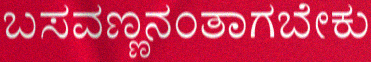
ಬಸವಣ್ಣನಂತಾಗಬೇಕು